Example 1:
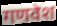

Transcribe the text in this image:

गणवेश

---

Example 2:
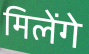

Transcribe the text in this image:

मिलेंगे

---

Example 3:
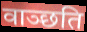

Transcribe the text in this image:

वाञ्छति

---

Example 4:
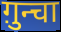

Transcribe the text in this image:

ग़ुन्चा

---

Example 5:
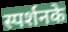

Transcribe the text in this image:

स्पर्शनके